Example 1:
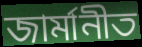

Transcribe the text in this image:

জাৰ্মানীত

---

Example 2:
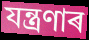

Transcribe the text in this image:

যন্ত্ৰণাৰ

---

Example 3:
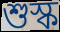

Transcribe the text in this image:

শুস্ক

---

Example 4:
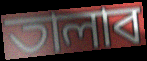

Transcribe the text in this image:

তালাব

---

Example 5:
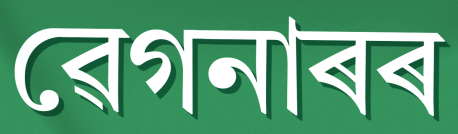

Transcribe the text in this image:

ৱেগনাৰৰ